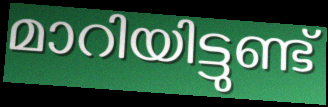
മാറിയിട്ടുണ്ട്